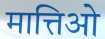
मात्तिओ